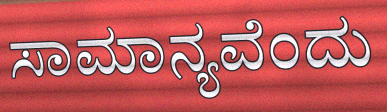
ಸಾಮಾನ್ಯವೆಂದು